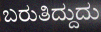
ಬರುತಿದ್ದುದು